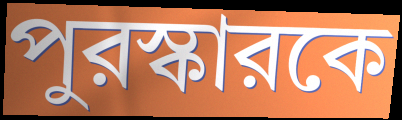
পুরস্কারকে